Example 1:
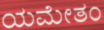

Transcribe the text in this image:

ಯಮೇತಂ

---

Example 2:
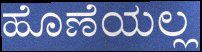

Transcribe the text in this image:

ಹೊಣೆಯಲ್ಲ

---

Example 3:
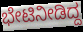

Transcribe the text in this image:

ಭೇಟಿನೀಡಿದ್ದ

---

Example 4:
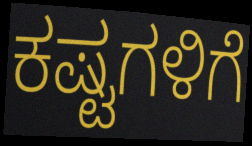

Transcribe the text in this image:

ಕಷ್ಟಗಳಿಗೆ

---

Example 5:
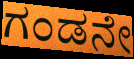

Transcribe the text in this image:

ಗಂಡನೇ